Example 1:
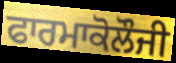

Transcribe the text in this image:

ਫਾਰਮਾਕੋਲੌਜੀ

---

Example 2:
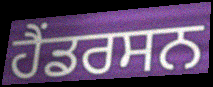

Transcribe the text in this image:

ਹੈਂਡਰਸਨ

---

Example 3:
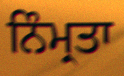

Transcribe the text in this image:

ਨਿੰਮ੍ਰਤਾ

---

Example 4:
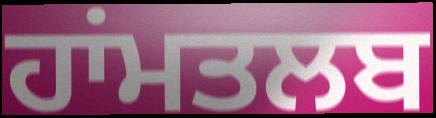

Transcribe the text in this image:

ਹਾਂਮਤਲਬ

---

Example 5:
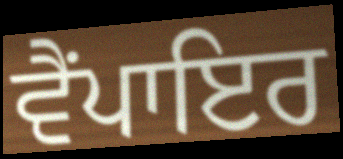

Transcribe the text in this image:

ਵੈਂਪਾਇਰ